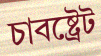
চাবষ্ট্ৰেট